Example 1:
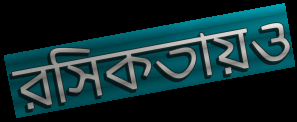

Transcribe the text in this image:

রসিকতায়ও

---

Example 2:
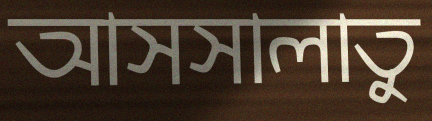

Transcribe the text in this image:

আসসালাতু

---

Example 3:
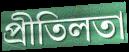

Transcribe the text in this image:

প্রীতিলতা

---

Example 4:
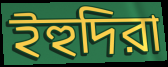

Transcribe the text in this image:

ইহুদিরা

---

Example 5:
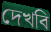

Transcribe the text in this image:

দেখবি